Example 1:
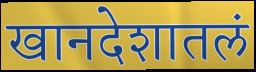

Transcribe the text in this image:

खानदेशातलं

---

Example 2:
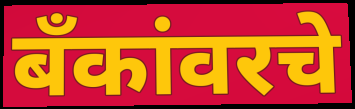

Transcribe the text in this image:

बँकांवरचे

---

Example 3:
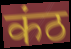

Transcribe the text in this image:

कंठ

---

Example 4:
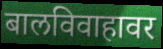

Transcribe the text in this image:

बालविवाहावर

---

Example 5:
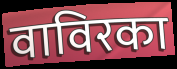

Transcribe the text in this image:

वाविरका